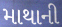
માથાની